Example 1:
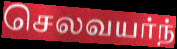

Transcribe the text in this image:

செலவயர்ந்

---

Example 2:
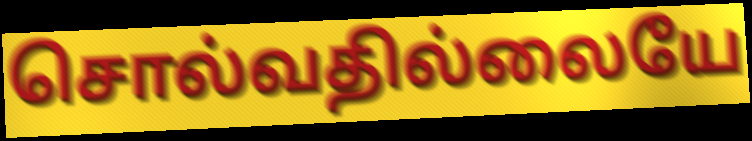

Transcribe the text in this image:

சொல்வதில்லையே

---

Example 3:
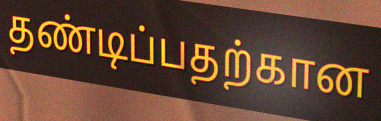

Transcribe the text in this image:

தண்டிப்பதற்கான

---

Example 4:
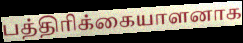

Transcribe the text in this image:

பத்திரிக்கையாளனாக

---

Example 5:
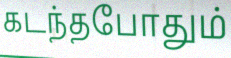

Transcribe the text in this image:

கடந்தபோதும்